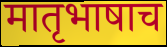
मातृभाषाच